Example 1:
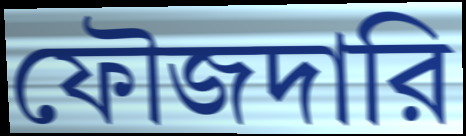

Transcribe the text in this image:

ফৌজদারি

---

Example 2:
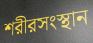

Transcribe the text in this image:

শরীরসংস্থান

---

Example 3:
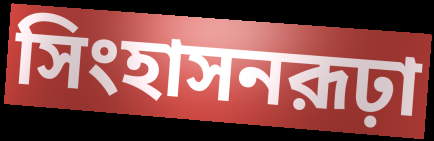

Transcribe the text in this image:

সিংহাসনরূঢ়া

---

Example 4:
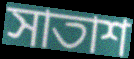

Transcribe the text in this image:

সাতাশ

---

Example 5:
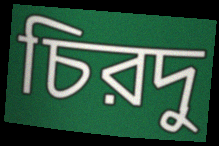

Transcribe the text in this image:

চিরদু